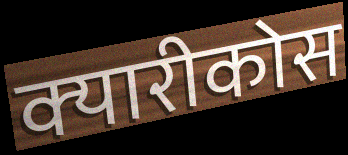
क्यारीकोस